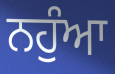
ਨਹੁੰਆ